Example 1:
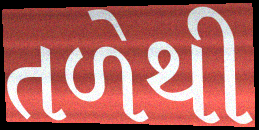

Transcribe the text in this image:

તળેથી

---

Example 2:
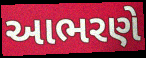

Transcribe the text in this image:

આભરણે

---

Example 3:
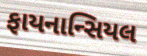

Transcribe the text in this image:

ફાયનાન્સિયલ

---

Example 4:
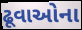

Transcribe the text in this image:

ઢૂવાઓના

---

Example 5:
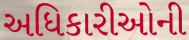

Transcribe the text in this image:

અધિકારીઓની